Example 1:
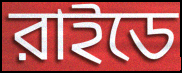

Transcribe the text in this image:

রাইডে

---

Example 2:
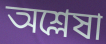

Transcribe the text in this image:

অশ্লেষা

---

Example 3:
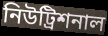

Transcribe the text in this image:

নিউট্রিশনাল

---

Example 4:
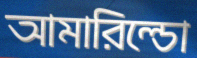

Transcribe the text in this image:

আমারিল্ডো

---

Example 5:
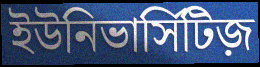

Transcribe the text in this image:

ইউনিভার্সিটিজ়